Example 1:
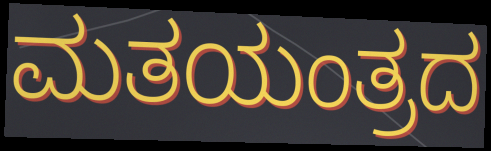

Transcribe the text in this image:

ಮತಯಂತ್ರದ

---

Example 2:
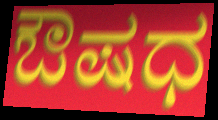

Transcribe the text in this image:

ಔಷಧ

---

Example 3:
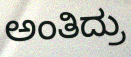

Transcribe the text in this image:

ಅಂತಿದ್ರು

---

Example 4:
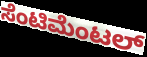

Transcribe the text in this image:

ಸೆಂಟಿಮೆಂಟಲ್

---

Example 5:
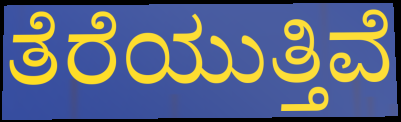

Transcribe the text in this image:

ತೆರೆಯುತ್ತಿವೆ